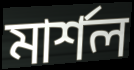
মার্শল